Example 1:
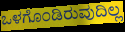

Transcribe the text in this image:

ಒಳಗೊಂಡಿರುವುದಿಲ್ಲ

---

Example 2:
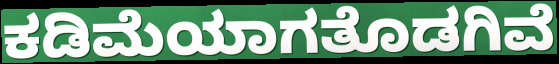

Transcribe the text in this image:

ಕಡಿಮೆಯಾಗತೊಡಗಿವೆ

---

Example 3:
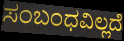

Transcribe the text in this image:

ಸಂಬಂಧವಿಲ್ಲದೆ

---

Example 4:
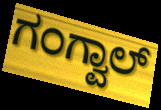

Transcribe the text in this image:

ಗಂಗ್ವಾಲ್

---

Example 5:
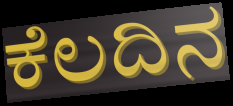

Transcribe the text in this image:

ಕೆಲದಿನ